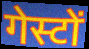
गेस्टों